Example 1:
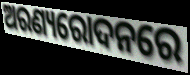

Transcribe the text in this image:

ଅରଣ୍ୟରୋଦନରେ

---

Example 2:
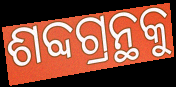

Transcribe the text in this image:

ଶବ୍ଦଗ୍ରନ୍ଥକୁ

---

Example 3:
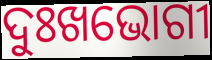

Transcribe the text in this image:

ଦୁଃଖଭୋଗୀ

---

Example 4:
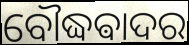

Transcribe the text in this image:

ବୌଦ୍ଧଵାଦର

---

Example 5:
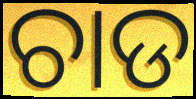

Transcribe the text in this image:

ଚାଡ